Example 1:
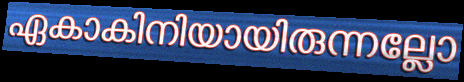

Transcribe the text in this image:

ഏകാകിനിയായിരുന്നല്ലോ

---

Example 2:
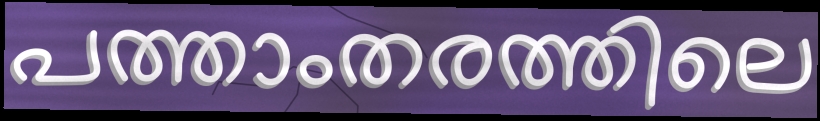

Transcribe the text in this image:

പത്താംതരത്തിലെ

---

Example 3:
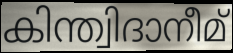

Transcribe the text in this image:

കിന്ത്വിദാനീമ്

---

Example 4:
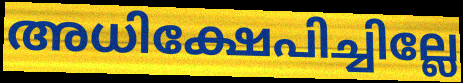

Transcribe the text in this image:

അധിക്ഷേപിച്ചില്ലേ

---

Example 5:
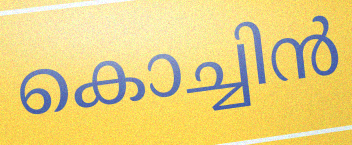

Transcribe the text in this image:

കൊച്ചിൻ